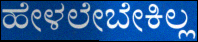
ಹೇಳಲೇಬೇಕಿಲ್ಲ